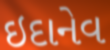
ઇદાનેવ